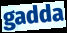
gadda